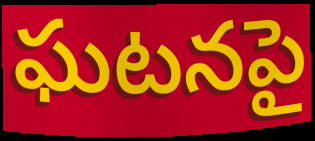
ఘటనపై